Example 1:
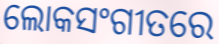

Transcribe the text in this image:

ଲୋକସଂଗୀତରେ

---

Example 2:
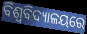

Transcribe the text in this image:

ବିଶ୍ୱବିଦ୍ୟାଳୟରେ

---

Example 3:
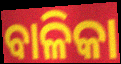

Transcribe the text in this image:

ବାଳିକା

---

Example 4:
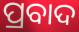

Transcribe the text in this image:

ପ୍ରବାଦ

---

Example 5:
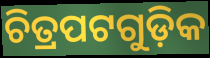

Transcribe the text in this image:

ଚିତ୍ରପଟଗୁଡ଼ିକ